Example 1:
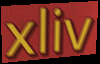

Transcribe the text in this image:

xliv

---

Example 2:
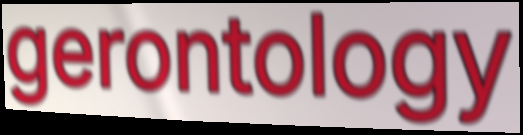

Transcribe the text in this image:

gerontology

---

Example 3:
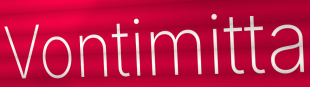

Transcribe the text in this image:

Vontimitta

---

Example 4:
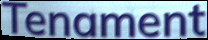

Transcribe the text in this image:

Tenament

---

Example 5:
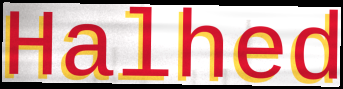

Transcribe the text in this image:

Halhed